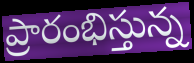
ప్రారంభిస్తున్న